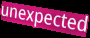
unexpected